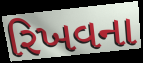
રિખવના